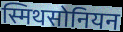
स्मिथसोनियन